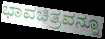
ಭಾವಚಿತ್ರವನ್ನೂ